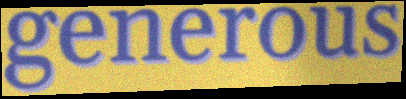
generous